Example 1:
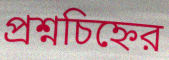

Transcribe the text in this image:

প্রশ্নচিহ্নের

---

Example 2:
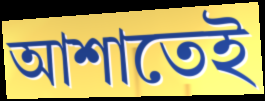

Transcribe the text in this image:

আশাতেই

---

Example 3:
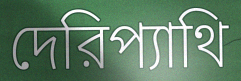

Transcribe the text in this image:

দেরিপ্যাথি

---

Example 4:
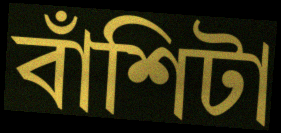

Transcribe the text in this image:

বাঁশিটা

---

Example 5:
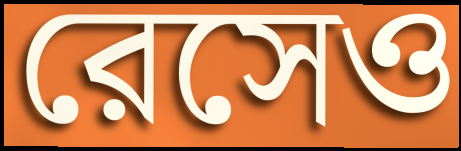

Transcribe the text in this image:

রেসেও